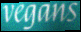
vegans